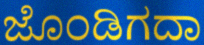
ಜೊಂಡಿಗದಾ